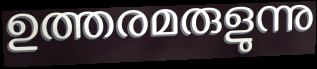
ഉത്തരമരുളുന്നു